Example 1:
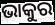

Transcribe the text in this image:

ଭାକୁର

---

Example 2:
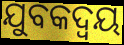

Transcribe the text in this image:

ଯୁବକଦ୍ୱୟ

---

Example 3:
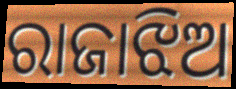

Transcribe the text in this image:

ରାଜାଝିଅ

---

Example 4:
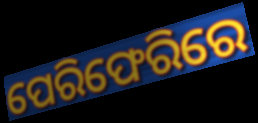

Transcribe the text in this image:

ପେରିଫେରିରେ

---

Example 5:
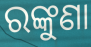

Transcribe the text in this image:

ରଙ୍କୁଣା